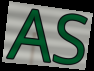
AS